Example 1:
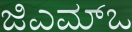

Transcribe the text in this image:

ಜಿಎಮ್ಒ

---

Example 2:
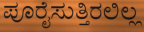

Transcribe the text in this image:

ಪೂರೈಸುತ್ತಿರಲಿಲ್ಲ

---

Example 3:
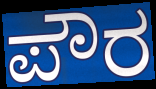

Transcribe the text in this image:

ಪೌರ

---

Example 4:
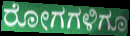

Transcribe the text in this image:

ರೋಗಗಳಿಗೂ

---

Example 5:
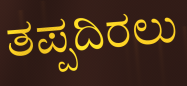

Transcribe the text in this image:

ತಪ್ಪದಿರಲು